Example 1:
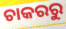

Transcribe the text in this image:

ଚାକରରୁ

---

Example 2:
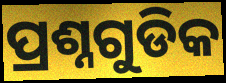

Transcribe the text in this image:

ପ୍ରଶ୍ନଗୁଡିକ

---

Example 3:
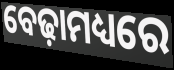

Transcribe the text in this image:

ବେଢ଼ାମଧ୍ୟରେ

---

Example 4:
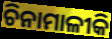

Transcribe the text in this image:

ଚିନାମାଳୀକି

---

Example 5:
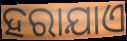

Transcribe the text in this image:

ହରାଯାଏ